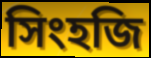
সিংহজি